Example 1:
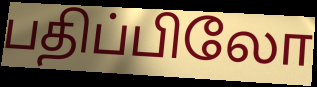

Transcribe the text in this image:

பதிப்பிலோ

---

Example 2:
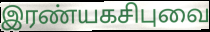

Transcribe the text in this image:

இரண்யகசிபுவை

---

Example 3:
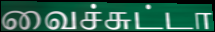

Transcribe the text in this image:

வைச்சுட்டா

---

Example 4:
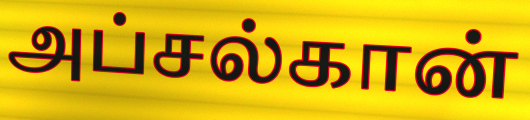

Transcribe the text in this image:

அப்சல்கான்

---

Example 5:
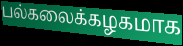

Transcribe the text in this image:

பல்கலைக்கழகமாக